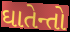
ઘાતેન્તો